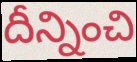
దీన్నించి